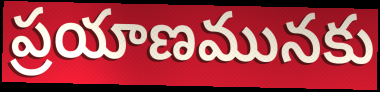
ప్రయాణమునకు